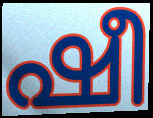
ഷീ